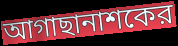
আগাছানাশকের